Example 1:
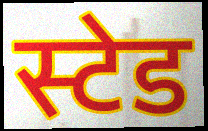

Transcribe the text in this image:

स्टेड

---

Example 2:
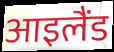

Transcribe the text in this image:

आइलैंड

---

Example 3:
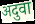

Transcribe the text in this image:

अदुवा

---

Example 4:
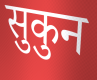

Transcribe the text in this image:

सुकुन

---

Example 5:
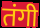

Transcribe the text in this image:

तंगी